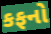
કફનો